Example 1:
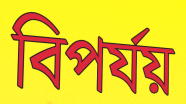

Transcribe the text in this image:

বিপৰ্যয়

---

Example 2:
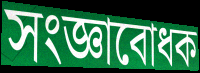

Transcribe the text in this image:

সংজ্ঞাবোধক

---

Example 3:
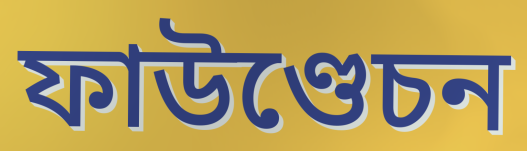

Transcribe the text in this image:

ফাউণ্ডেচন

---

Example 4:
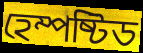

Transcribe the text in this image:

হেম্পষ্টিড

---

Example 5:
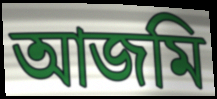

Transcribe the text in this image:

আজমি